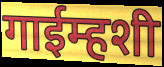
गाईम्हशी